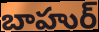
బాహుర్